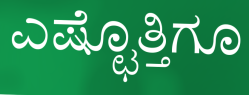
ಎಷ್ಟೊತ್ತಿಗೂ